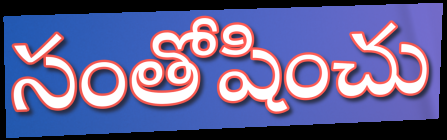
సంతోషించు